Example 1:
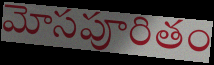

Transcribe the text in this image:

మోసపూరితం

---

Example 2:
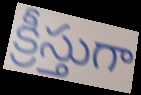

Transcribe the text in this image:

క్రీస్తుగా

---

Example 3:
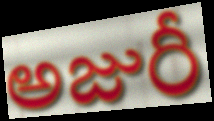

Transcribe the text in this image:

అజురీ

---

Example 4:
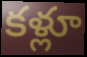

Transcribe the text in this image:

కళ్లూ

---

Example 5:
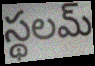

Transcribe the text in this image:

స్థలమ్